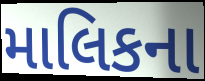
માલિકના